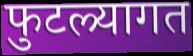
फुटल्यागत